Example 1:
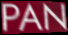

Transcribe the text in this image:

PAN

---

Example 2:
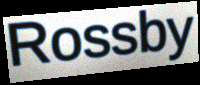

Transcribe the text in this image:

Rossby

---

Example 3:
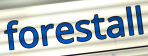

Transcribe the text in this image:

forestall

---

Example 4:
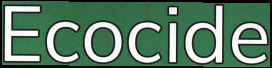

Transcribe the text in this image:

Ecocide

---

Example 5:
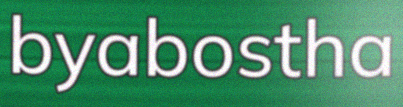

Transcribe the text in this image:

byabostha